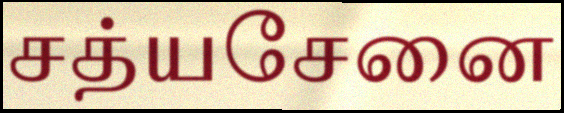
சத்யசேனை